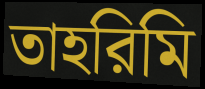
তাহরিমি